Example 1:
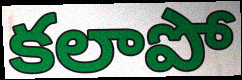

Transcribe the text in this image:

కలాపో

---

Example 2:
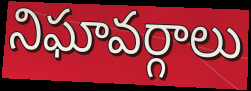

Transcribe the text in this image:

నిఘావర్గాలు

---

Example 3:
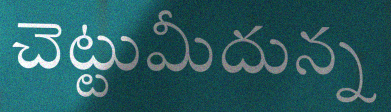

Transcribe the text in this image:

చెట్టుమీదున్న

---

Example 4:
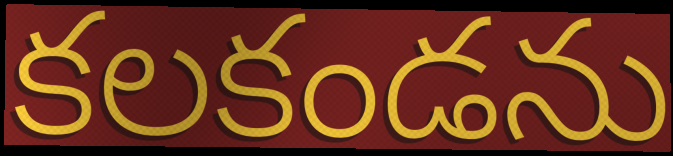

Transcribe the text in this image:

కలకండను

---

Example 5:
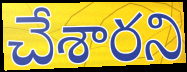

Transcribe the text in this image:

చేశారని